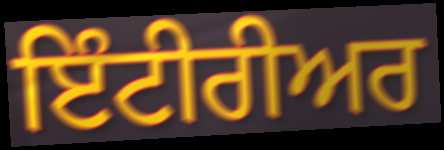
ਇੰਟੀਰੀਅਰ